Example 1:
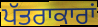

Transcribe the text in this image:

ਪੱਤਰਾਕਾਰਾਂ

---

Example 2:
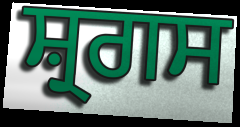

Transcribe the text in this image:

ਸ਼੍ਰਗਸ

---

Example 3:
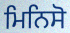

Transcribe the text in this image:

ਮਿਨਿਸੋ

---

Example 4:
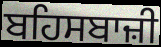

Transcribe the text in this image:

ਬਹਿਸਬਾਜ਼ੀ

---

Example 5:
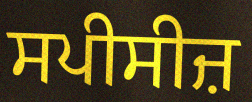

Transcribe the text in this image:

ਸਪੀਸੀਜ਼